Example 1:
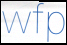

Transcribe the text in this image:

wfp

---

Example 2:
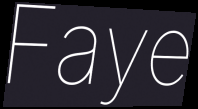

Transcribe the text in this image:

Faye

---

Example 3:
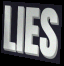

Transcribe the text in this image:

LIES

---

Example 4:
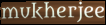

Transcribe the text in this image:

mukherjee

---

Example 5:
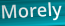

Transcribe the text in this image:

Morely